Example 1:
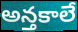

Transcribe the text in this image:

అన్తకాలే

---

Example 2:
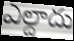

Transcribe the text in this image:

ఎల్దాదు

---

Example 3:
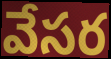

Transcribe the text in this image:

వేసర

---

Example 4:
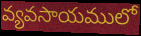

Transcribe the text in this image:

వ్యవసాయములో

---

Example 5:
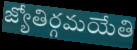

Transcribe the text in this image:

జ్యోతిర్గమయేతి